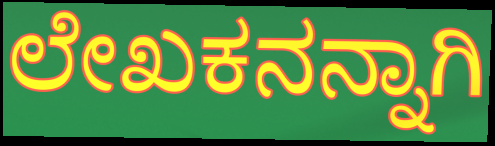
ಲೇಖಕನನ್ನಾಗಿ